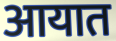
आयात